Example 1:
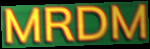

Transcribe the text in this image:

MRDM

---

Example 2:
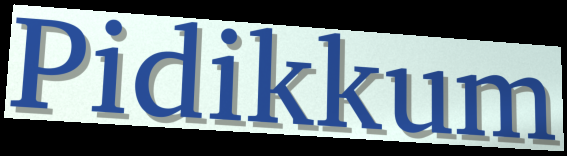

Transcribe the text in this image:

Pidikkum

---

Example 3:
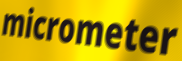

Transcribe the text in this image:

micrometer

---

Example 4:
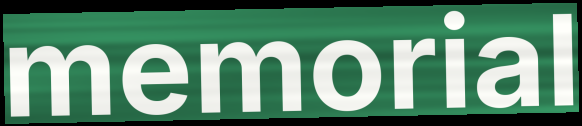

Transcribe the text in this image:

memorial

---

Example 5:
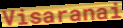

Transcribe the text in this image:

Visaranai